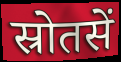
स्रोतसें